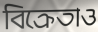
বিক্রেতাও